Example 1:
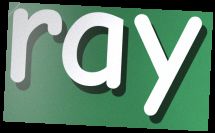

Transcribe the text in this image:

ray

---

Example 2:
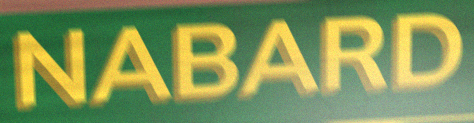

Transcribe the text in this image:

NABARD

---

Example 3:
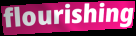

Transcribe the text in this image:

flourishing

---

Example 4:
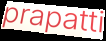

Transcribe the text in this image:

prapatti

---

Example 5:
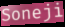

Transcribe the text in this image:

Soneji